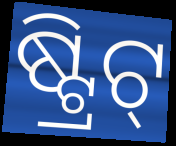
ଷ୍ଟ୍ରିଟ୍